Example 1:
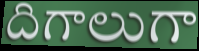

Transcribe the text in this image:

దిగాలుగా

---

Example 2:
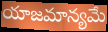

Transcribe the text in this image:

యాజమాన్యమే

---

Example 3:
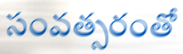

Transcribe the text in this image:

సంవత్సరంతో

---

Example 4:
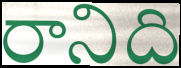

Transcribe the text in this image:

రానిది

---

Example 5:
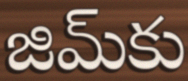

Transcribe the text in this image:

జిమ్‌కు